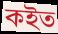
কইত